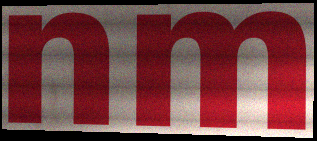
nm